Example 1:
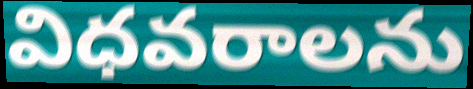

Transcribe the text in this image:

విధవరాలను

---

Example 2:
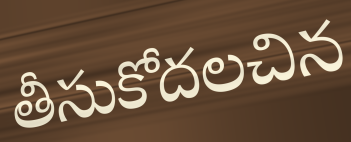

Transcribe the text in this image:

తీసుకోదలచిన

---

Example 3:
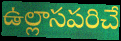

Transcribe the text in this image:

ఉల్లాసపరిచే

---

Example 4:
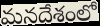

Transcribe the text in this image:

మనదేశంలో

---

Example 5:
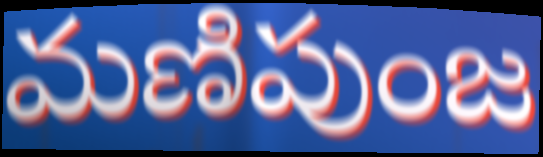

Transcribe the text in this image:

మణిపుంజ